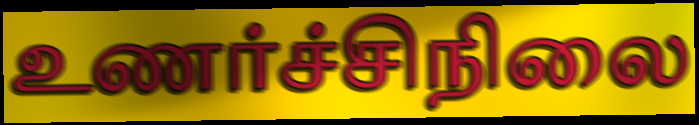
உணர்ச்சிநிலை